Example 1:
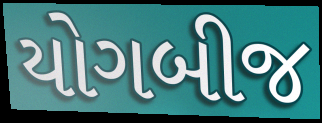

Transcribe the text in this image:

યોગબીજ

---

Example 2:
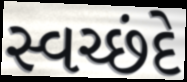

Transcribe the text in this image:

સ્વચ્છંદે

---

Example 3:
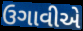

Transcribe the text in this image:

ઉગાવીએ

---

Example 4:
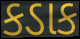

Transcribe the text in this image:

કડાક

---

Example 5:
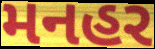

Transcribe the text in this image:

મનહર